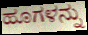
ಹೂಗಳನ್ನು